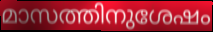
മാസത്തിനുശേഷം